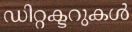
ഡിറ്റക്ടറുകൾ